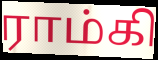
ராம்கி